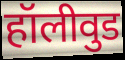
हॉलीवुड